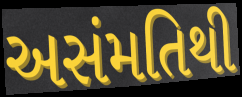
અસંમતિથી